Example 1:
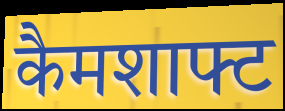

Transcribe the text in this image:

कैमशाफ्ट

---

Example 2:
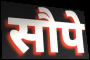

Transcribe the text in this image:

सौपे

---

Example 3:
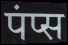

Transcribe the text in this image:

पंप्स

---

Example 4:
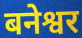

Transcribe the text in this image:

बनेश्वर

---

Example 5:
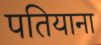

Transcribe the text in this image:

पतियाना